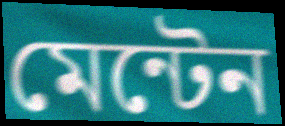
মেন্টেন